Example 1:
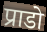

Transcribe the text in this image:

प्राडो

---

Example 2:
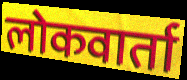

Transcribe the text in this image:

लोकवार्ता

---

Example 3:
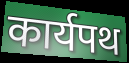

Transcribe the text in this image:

कार्यपथ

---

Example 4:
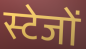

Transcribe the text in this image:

स्टेजों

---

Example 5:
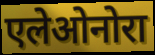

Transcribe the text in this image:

एलेओनोरा